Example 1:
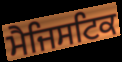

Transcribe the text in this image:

ਮੈਜਿਸਟਿਕ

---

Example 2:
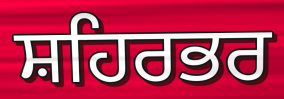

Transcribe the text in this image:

ਸ਼ਹਿਰਭਰ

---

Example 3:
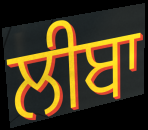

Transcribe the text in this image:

ਲੀਬਾ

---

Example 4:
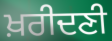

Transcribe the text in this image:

ਖ਼ਰੀਦਣੀ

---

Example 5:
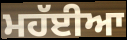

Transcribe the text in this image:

ਮਹੱਈਆ